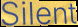
Silent